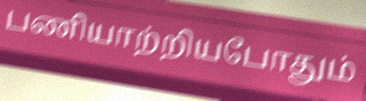
பணியாற்றியபோதும்